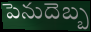
పెనుదెబ్బ